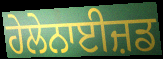
ਹੇਲੇਨਾਈਜ਼ਡ